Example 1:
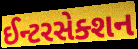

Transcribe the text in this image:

ઈન્ટરસેક્શન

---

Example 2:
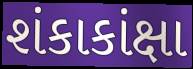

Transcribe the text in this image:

શંકાકાંક્ષા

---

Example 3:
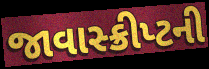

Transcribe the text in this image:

જાવાસ્ક્રીપ્ટની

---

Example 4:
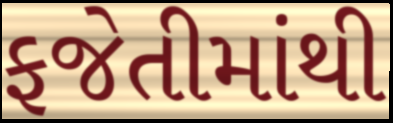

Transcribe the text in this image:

ફજેતીમાંથી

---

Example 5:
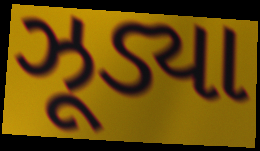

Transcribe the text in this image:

ઝૂડ્યા